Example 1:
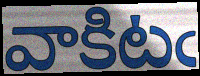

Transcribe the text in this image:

వాకిటఁ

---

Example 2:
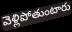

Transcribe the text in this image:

వెళ్లిపోతుంటారు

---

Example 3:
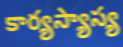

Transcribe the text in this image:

కార్యస్యాస్య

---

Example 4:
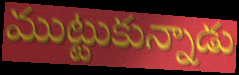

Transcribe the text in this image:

ముట్టుకున్నాడు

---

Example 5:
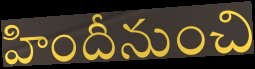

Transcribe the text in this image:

హిందీనుంచి